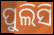
ପୁଲିସି